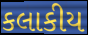
કલાકીય